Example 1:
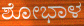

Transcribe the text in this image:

ಶೋಭಾಳ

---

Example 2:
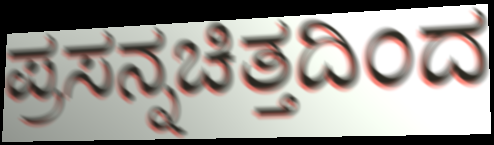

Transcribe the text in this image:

ಪ್ರಸನ್ನಚಿತ್ತದಿಂದ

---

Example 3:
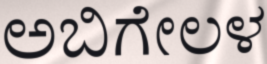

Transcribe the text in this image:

ಅಬಿಗೇಲಳ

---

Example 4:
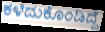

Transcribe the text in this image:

ಕಳೆದುಕೊಂಡಿದ್ದೆ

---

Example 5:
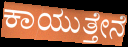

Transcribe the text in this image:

ಕಾಯುತ್ತೇನೆ